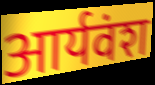
आर्यवंश